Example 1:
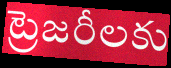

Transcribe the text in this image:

ట్రెజరీలకు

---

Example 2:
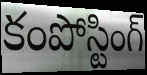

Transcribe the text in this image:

కంపోస్టింగ్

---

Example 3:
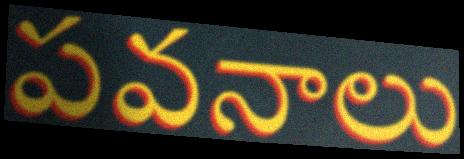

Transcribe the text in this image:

పవనాలు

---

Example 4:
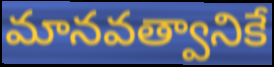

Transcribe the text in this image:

మానవత్వానికే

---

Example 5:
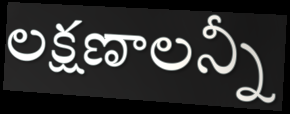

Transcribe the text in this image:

లక్షణాలన్నీ